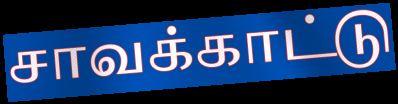
சாவக்காட்டு